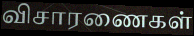
விசாரணைகள்